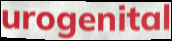
urogenital